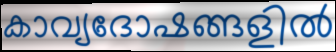
കാവ്യദോഷങ്ങളിൽ